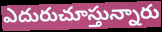
ఎదురుచూస్తున్నారు